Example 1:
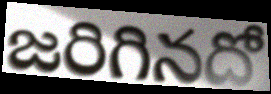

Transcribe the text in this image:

జరిగినదో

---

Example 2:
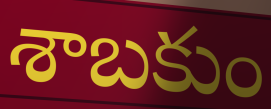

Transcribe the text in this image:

శాబకుం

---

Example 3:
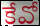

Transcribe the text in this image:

కేవో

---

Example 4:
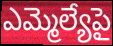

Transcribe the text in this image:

ఎమ్మెల్యేపై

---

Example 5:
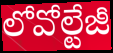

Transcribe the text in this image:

లోవోల్టేజీ